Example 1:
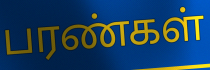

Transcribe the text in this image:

பரண்கள்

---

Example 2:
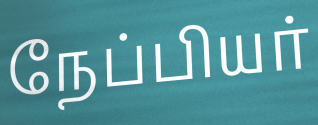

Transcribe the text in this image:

நேப்பியர்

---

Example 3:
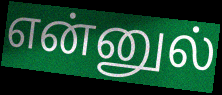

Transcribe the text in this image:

என்னுல்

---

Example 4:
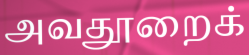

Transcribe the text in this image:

அவதூறைக்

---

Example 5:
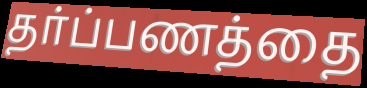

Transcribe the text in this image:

தர்ப்பணத்தை